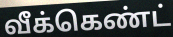
வீக்கெண்ட்